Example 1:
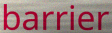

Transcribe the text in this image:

barrier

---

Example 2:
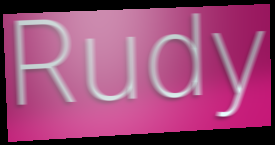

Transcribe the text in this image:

Rudy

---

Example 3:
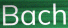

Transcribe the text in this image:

Bach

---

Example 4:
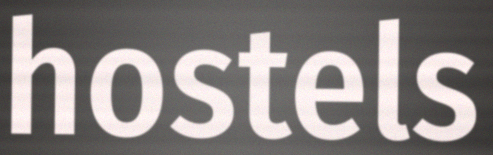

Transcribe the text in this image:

hostels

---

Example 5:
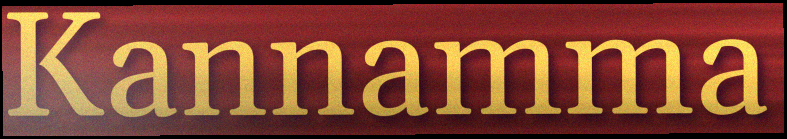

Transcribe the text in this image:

Kannamma